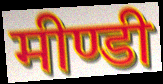
मीण्‍डी